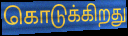
கொடுக்கிறது